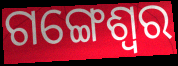
ଗଙ୍ଗେଶ୍ଵର